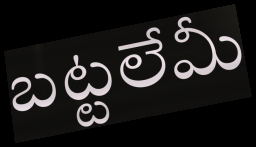
బట్టలేమీ